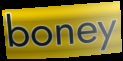
boney